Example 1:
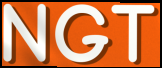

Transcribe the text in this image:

NGT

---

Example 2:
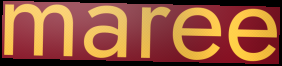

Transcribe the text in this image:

maree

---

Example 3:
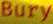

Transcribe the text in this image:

Bury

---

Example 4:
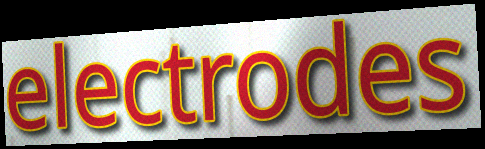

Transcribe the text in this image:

electrodes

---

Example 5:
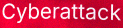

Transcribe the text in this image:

Cyberattack